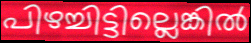
പിഴച്ചിട്ടില്ലെങ്കിൽ